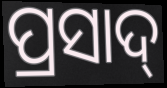
ପ୍ରସାଦ୍